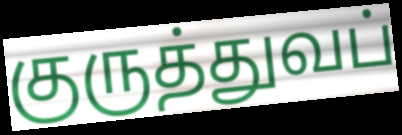
குருத்துவப்